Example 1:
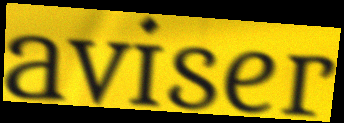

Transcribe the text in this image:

aviser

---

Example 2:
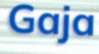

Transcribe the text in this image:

Gaja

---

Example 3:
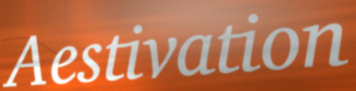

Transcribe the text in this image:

Aestivation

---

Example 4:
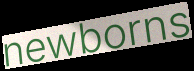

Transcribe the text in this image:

newborns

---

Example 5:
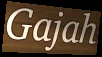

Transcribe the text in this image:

Gajah